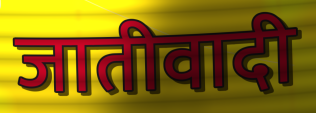
जातीवादी